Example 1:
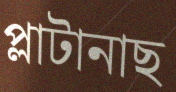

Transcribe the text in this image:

প্লাটানাছ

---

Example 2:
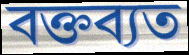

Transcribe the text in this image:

বক্তব্যত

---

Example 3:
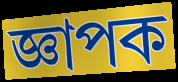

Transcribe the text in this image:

জ্ঞাপক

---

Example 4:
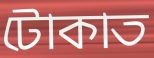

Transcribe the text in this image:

টোকাত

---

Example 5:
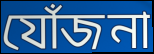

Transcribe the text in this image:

যোঁজনা